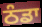
ਠੰਡਾ